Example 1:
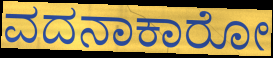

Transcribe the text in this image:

ವದನಾಕಾರೋ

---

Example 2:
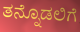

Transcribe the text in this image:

ತನ್ನೊಡಲಿಗೆ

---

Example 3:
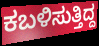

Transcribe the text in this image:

ಕಬಳಿಸುತ್ತಿದ್ದ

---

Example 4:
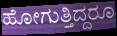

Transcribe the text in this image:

ಹೋಗುತ್ತಿದ್ದರೂ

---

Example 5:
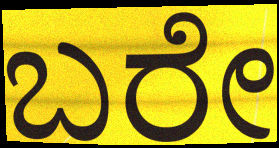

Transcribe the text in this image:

ಬರೇ